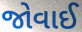
જોવાઈ